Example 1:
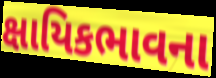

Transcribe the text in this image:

ક્ષાયિકભાવના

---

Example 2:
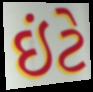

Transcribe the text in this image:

ઇંટે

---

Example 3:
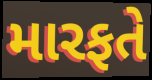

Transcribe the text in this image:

મારફતે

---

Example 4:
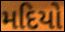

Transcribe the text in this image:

મદિયો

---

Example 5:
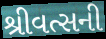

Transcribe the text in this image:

શ્રીવત્સની